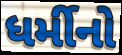
ધર્મીનો